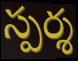
స్పర్శ